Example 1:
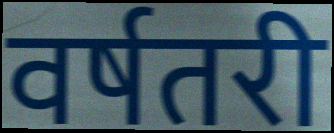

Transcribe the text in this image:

वर्षतरी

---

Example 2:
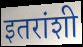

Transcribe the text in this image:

इतरांशी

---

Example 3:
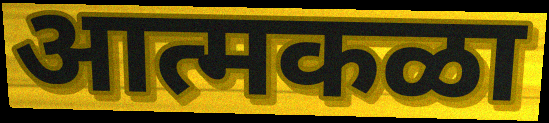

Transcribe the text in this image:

आत्मकळा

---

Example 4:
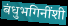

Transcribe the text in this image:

बंधुभगिनींशी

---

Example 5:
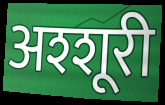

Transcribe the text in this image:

अश्‍शूरी